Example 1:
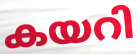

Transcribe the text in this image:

കയറി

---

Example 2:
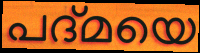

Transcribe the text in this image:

പദ്മയെ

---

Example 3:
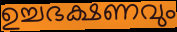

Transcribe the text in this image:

ഉച്ചഭക്ഷണവും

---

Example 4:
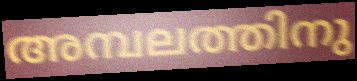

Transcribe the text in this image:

അമ്പലത്തിനു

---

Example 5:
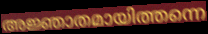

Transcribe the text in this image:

അജ്ഞാതമായിത്തന്നെ